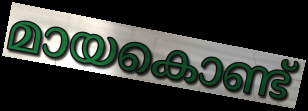
മായകൊണ്ട്